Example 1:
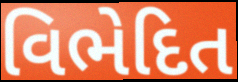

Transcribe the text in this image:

વિભેદિત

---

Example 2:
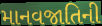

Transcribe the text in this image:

માનવજાતિની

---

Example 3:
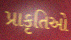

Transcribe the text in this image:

પ્રાકૃતિઓ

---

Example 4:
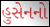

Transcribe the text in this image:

હુસેનનો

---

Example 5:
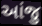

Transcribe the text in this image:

આંજુ